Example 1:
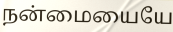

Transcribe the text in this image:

நன்மையையே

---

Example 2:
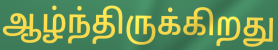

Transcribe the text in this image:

ஆழ்ந்திருக்கிறது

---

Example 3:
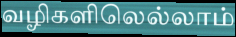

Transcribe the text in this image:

வழிகளிலெல்லாம்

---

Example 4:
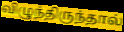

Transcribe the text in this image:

விழுந்திருந்தால்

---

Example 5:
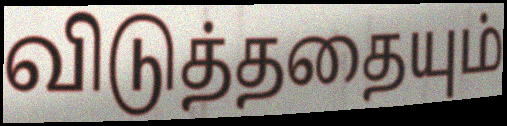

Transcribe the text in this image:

விடுத்ததையும்